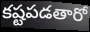
కష్టపడతారో